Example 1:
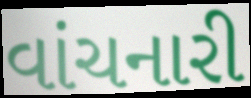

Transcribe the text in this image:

વાંચનારી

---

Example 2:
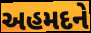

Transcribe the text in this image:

અહમદને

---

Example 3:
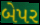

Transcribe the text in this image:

બેપર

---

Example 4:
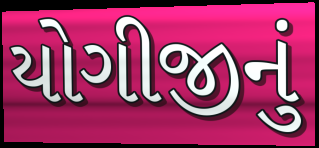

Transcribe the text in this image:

યોગીજીનું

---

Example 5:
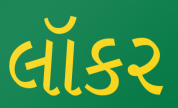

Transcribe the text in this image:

લૉકર